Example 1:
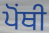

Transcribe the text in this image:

ਪੋਂਥੀ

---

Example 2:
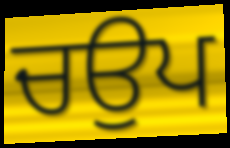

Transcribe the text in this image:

ਚਉਪ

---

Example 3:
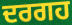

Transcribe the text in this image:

ਦਰਗਹ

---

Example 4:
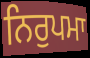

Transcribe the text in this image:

ਨਿਰੁਪਮਾ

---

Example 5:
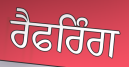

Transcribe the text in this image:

ਰੈਫਰਿੰਗ